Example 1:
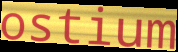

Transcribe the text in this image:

ostium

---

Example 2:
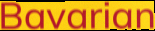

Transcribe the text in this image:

Bavarian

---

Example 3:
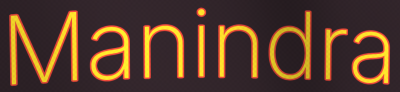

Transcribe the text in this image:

Manindra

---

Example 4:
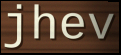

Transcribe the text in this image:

jhev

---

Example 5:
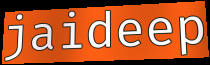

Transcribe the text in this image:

jaideep